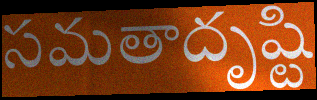
సమతాదృష్టి